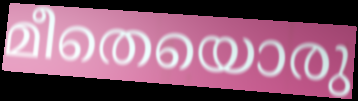
മീതെയൊരു